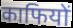
काफियों